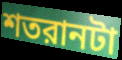
শতরানটা